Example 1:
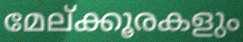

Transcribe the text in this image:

മേല്ക്കൂരകളും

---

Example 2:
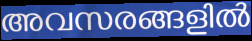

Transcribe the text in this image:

അവസരങ്ങളിൽ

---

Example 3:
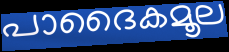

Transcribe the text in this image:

പാദൈകമൂല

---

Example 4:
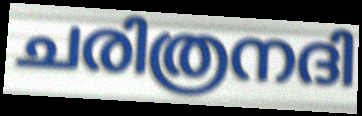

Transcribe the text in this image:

ചരിത്രനദി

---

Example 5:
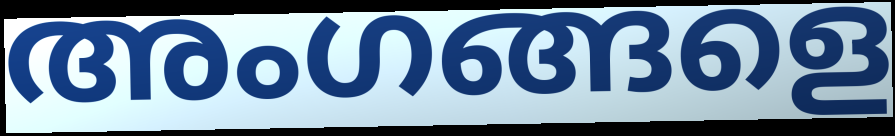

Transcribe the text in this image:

അംഗങ്ങളെ